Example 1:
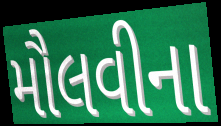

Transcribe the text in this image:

મૌલવીના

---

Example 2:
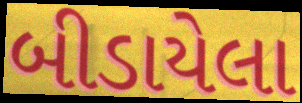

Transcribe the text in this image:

બીડાયેલા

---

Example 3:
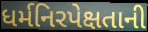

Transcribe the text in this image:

ધર્મનિરપેક્ષતાની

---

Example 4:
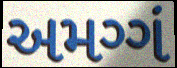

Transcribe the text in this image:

અમગ્ગં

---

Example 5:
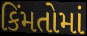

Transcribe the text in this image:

કિંમતોમાં